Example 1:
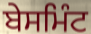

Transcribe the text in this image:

ਬੇਸਮਿੰਟ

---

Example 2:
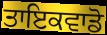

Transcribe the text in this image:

ਤਾਇਕਵਾਡੋ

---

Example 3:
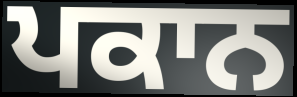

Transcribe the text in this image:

ਪਕਾਨ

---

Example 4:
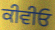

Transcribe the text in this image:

ਕੀਵੀਓ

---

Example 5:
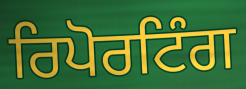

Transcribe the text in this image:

ਰਿਪੋਰਟਿੰਗ